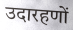
उदारहणों